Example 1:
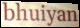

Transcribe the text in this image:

bhuiyan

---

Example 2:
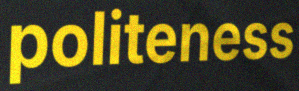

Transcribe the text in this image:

politeness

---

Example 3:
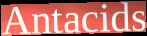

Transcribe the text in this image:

Antacids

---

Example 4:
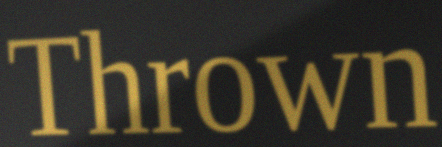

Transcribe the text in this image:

Thrown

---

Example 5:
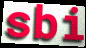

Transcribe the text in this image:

sbi